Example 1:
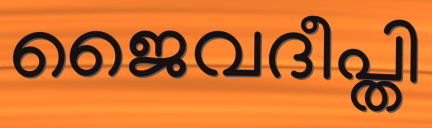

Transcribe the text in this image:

ജൈവദീപ്തി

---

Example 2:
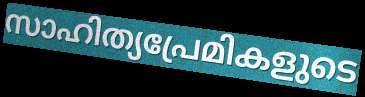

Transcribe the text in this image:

സാഹിത്യപ്രേമികളുടെ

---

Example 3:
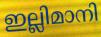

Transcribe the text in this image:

ഇല്ലിമാനി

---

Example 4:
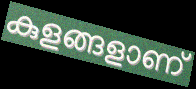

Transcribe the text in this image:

കുളങ്ങളാണ്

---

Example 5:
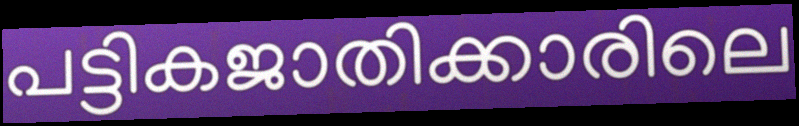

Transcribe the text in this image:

പട്ടികജാതിക്കാരിലെ